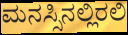
ಮನಸ್ಸಿನಲ್ಲಿರಲಿ